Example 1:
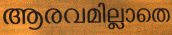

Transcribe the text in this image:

ആരവമില്ലാതെ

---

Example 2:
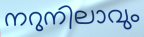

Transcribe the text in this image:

നറുനിലാവും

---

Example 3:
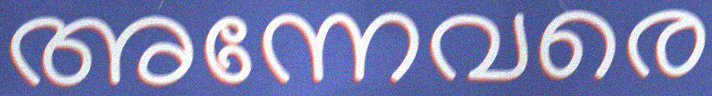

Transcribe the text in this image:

അന്നേവരെ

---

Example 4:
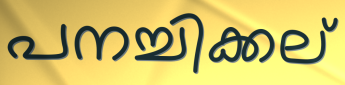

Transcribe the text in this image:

പനച്ചിക്കല്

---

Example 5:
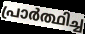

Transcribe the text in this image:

പ്രാർത്ഥിച്ച